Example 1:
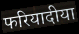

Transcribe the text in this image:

फरियादीया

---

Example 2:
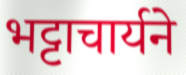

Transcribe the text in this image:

भट्टाचार्यने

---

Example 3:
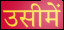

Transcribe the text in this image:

उसीमें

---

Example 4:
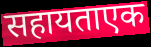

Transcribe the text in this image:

सहायताएक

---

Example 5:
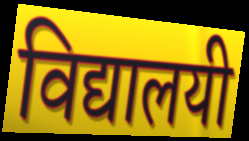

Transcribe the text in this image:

विद्यालयी